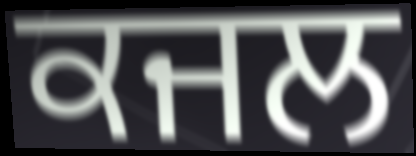
ਕਜਲ